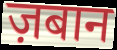
ज़बान